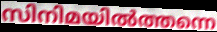
സിനിമയിൽത്തന്നെ